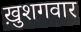
ख़ुशगवार